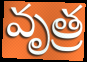
వృత్ర